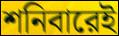
শনিবারেই